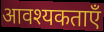
आवश्यकताएँ